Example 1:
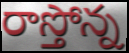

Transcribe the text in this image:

రాస్తోన్న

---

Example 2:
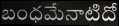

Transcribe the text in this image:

బంధమేనాటిదో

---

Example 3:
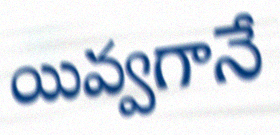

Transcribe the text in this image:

యివ్వగానే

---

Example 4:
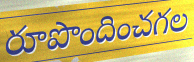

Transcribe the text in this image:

రూపొందించగల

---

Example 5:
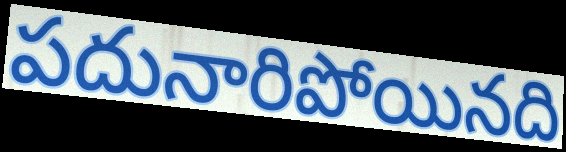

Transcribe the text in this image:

పదునారిపోయినది